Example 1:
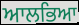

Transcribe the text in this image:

ਆਲਭਿਆ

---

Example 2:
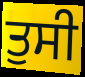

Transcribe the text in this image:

ਤੁਸੀ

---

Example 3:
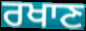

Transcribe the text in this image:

ਰਖਾਣ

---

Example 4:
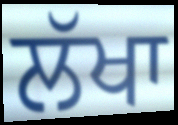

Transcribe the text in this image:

ਲੱਖਾ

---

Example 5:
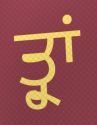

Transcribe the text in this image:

ਤ੍ਰ੍ਹਾਂ